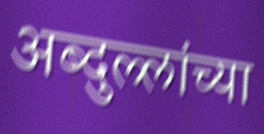
अब्दुल्लांच्या